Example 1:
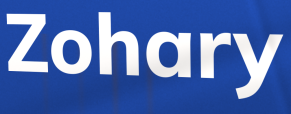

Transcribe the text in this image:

Zohary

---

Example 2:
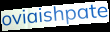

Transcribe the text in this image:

oviaishpate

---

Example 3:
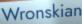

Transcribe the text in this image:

Wronskian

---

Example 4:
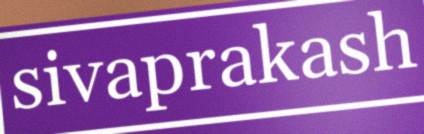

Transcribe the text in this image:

sivaprakash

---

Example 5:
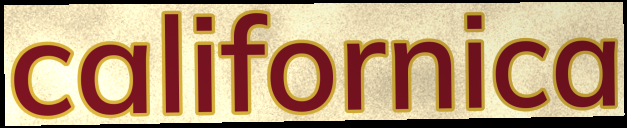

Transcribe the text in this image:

californica